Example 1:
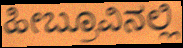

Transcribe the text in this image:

ಹೀಬ್ರೂವಿನಲ್ಲಿ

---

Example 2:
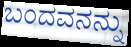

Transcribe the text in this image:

ಬಂದವನನ್ನು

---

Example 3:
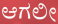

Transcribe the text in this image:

ಆಗಲೀ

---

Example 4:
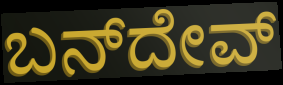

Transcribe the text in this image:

ಬನ್‌ದೇವ್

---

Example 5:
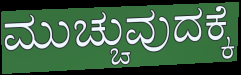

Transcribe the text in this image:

ಮುಚ್ಚುವುದಕ್ಕೆ